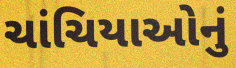
ચાંચિયાઓનું